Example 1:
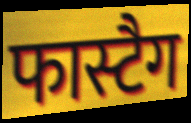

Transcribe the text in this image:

फास्‍टैग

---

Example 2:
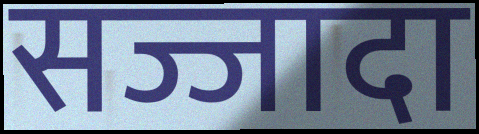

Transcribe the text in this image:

सज्जादा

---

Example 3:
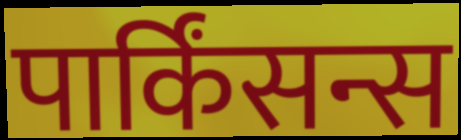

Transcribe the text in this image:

पार्किंसन्स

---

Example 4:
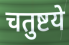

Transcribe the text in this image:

चतुष्टये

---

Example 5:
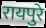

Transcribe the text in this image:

रायपुरे